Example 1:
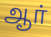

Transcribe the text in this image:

ஆர்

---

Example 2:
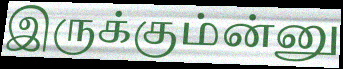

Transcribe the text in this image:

இருக்கும்ன்னு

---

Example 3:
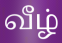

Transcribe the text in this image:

வீழ்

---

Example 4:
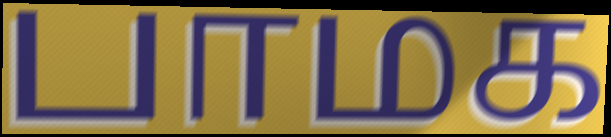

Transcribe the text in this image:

பாமக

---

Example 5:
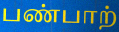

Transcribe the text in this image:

பண்பாற்